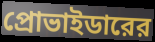
প্রোভাইডারের